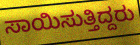
ಸಾಯಿಸುತ್ತಿದ್ದರು